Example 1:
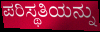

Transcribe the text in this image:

ಪರಿಸ್ಥತಿಯನ್ನು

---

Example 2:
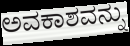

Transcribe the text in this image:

ಅವಕಾಶವನ್ನು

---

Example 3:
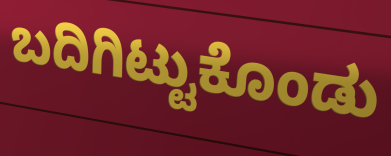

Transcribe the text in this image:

ಬದಿಗಿಟ್ಟುಕೊಂಡು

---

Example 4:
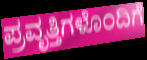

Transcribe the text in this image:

ಪ್ರವೃತ್ತಿಗಳೊಂದಿಗೆ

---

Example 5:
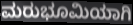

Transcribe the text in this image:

ಮರುಭೂಮಿಯಾಗಿ